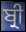
ਬ੍ਰੀ